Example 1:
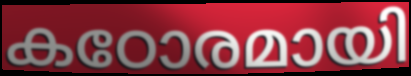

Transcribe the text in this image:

കഠോരമായി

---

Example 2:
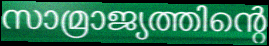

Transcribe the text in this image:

സാമ്രാജ്യത്തിന്റെ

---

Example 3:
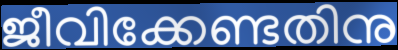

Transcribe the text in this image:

ജീവിക്കേണ്ടതിനു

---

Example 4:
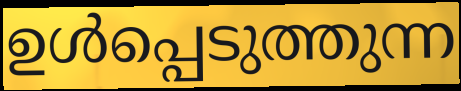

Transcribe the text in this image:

ഉൾപ്പെടുത്തുന്ന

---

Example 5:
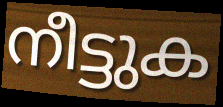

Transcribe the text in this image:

നീട്ടുക